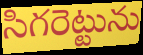
సిగరెట్టును